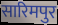
सारिमपुर